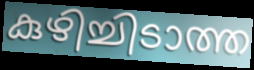
കുഴിച്ചിടാത്ത